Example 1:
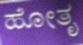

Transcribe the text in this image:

ಹೋತೃ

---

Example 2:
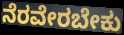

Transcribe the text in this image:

ನೆರವೇರಬೇಕು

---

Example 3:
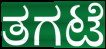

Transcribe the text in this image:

ತಗಟೆ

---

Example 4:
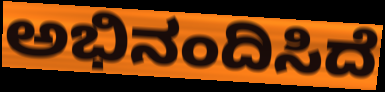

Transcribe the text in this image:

ಅಭಿನಂದಿಸಿದೆ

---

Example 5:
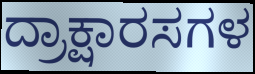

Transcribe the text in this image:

ದ್ರಾಕ್ಷಾರಸಗಳ